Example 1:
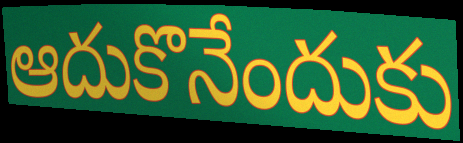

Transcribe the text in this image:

ఆదుకొనేందుకు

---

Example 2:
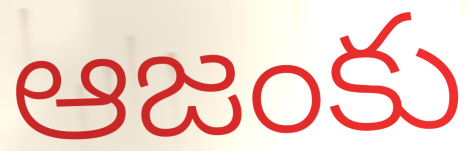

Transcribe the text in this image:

ఆజంకు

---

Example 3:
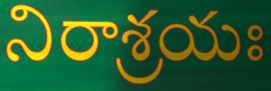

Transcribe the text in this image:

నిరాశ్రయః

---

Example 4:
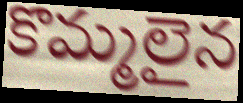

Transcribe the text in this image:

కొమ్మలైన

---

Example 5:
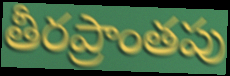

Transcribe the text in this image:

తీరప్రాంతపు